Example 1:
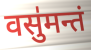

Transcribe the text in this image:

वसु॑मन्तं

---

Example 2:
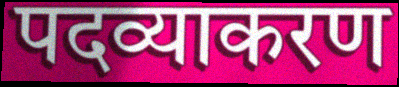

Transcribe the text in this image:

पदव्याकरण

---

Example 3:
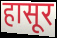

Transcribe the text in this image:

हासूर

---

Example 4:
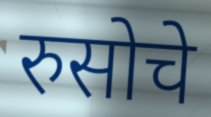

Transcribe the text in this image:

रुसोचे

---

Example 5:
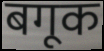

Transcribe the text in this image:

बगूक